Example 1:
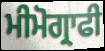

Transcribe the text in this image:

ਮੀਮੋਗ੍ਰਾਫੀ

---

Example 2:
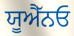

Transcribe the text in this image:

ਯੂਐੱਨਓ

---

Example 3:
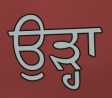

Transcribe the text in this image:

ਉੜ੍ਹਾ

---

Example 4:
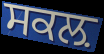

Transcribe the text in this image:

ਸਕਲ਼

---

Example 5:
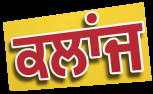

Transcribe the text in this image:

ਕਲਾਂਜ